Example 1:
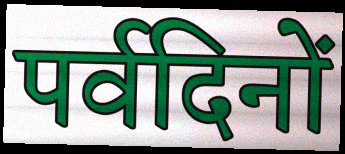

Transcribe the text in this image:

पर्वदिनों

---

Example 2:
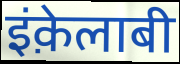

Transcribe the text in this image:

इंक़ेलाबी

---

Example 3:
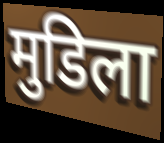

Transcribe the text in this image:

मुडिला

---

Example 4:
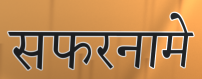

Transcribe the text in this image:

सफरनामे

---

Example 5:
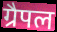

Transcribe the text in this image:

ग्रैपल